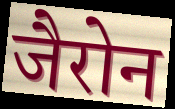
जैरोन